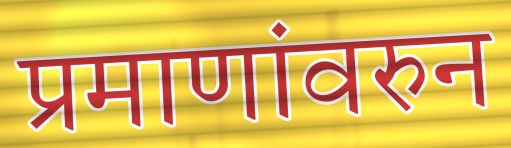
प्रमाणांवरुन